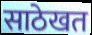
साठेखत